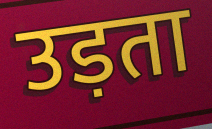
उड़ता